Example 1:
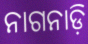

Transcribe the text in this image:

ନାଗନାଡ଼ି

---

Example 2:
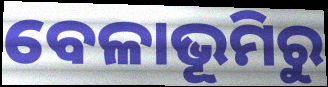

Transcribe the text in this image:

ବେଳାଭୂମିରୁ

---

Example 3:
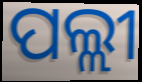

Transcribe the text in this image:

ପଲ୍ଲୀ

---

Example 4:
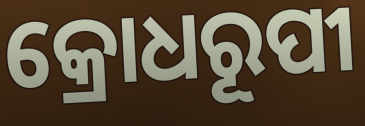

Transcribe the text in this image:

କ୍ରୋଧରୂପୀ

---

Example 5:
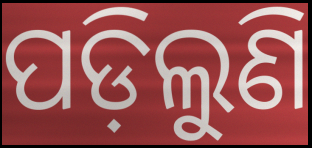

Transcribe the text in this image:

ପଡ଼ିଲୁଣି